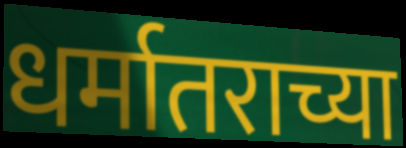
धर्मातराच्या